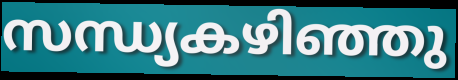
സന്ധ്യകഴിഞ്ഞു